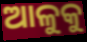
ଆଳୁକୁ